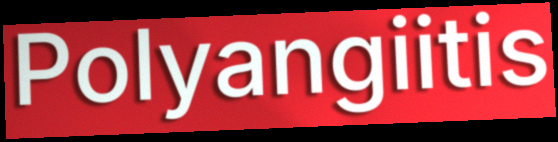
Polyangiitis